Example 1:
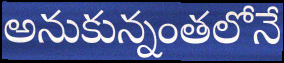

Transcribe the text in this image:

అనుకున్నంతలోనే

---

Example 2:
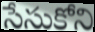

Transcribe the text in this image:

సేసుకోని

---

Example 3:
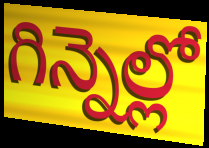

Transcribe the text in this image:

గిన్నెల్లో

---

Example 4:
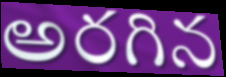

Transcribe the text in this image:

అరగిన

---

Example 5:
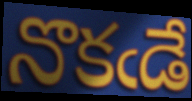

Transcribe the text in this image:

నొకఁడే